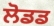
ਲੋਡਡ